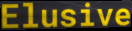
Elusive